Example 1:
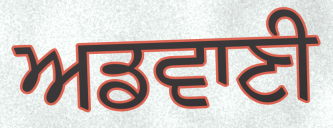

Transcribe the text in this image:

ਅਡਵਾਣੀ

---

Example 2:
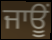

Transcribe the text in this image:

ਜਾਊਂ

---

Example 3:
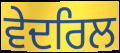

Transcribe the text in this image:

ਵੇਦਰਿਲ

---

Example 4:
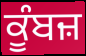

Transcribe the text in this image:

ਕੂੰਬਜ਼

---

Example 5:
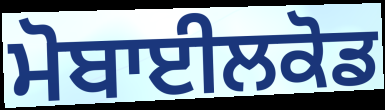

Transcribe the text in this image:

ਮੋਬਾਈਲਕੋਡ